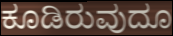
ಕೂಡಿರುವುದೂ